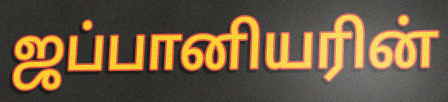
ஜப்பானியரின்